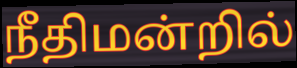
நீதிமன்றில்